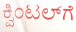
ಕ್ವಿಂಟಲ್‌ಗೆ